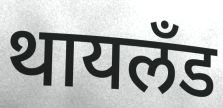
थायलँड